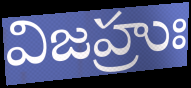
విజహ్రుః